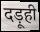
दड़ूही